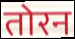
तोरन